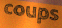
coups